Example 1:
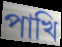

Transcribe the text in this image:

পাখি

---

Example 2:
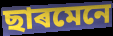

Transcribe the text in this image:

ছাৰমেনে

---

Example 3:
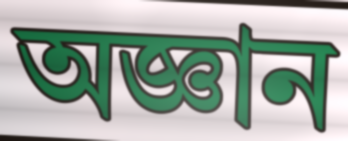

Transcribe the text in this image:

অজ্ঞান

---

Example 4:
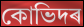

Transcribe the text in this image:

কোভিদৰ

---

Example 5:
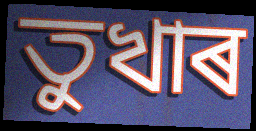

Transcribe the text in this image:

তুখাৰ